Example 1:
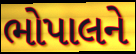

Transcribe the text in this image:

ભોપાલને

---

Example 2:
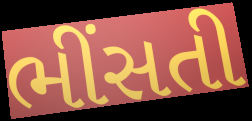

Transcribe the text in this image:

ભીંસતી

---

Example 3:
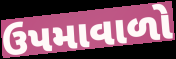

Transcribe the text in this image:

ઉપમાવાળો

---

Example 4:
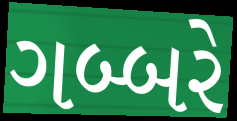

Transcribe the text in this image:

ગબ્બરે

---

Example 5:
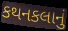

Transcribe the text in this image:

કથનકલાનું